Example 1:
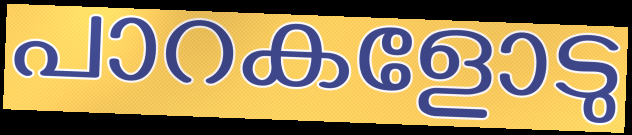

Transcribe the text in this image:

പാറകളോടു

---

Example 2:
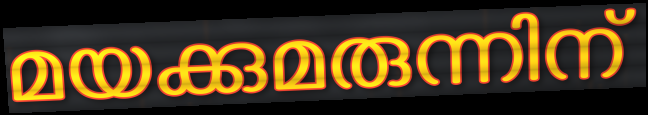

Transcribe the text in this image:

മയക്കുമരുന്നിന്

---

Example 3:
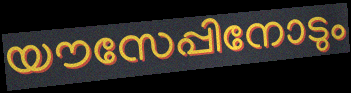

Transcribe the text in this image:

യൗസേപ്പിനോടും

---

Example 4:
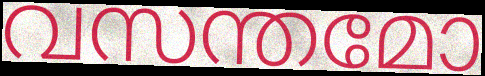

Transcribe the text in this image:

വസന്തമോ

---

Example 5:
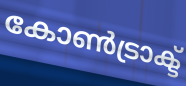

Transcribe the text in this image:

കോൺട്രാക്ട്